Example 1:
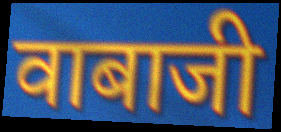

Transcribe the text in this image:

वाबाजी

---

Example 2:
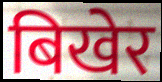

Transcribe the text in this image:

बिखेर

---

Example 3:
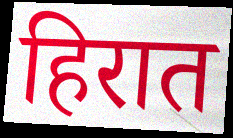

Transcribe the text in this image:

हिरात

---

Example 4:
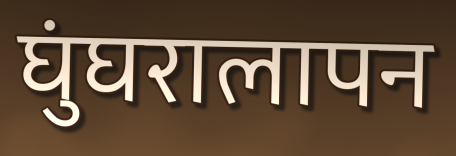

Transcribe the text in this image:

घुंघरालापन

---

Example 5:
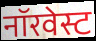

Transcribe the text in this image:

नॉरवेस्ट